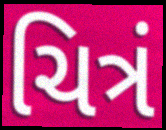
ચિત્રં